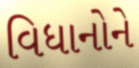
વિધાનોને